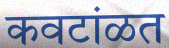
कवटांळत